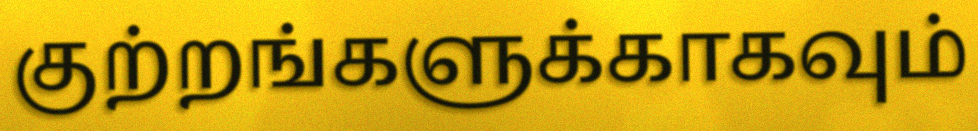
குற்றங்களுக்காகவும்